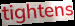
tightens